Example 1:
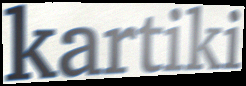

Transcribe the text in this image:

kartiki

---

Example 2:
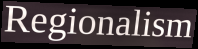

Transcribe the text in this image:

Regionalism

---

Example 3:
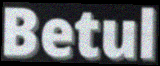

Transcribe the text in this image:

Betul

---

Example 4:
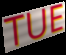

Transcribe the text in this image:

TUE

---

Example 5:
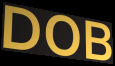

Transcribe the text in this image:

DOB